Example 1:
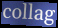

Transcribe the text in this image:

collag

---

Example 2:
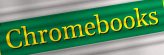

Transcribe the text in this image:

Chromebooks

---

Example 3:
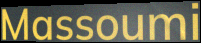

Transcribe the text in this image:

Massoumi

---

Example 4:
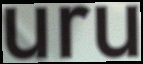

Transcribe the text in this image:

uru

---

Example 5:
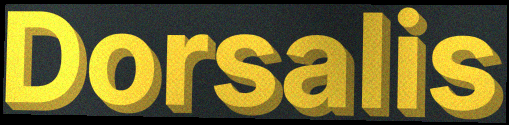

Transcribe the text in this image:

Dorsalis